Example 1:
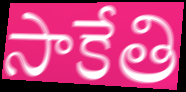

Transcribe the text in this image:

సాకేతి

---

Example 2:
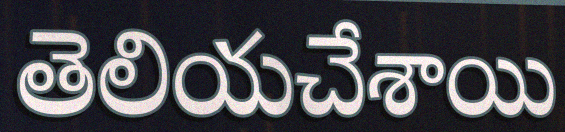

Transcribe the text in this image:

తెలియచేశాయి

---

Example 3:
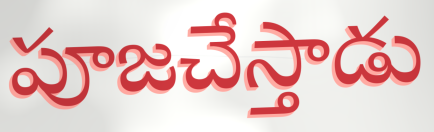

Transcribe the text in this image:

పూజచేస్తాడు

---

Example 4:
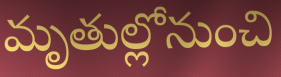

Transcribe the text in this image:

మృతుల్లోనుంచి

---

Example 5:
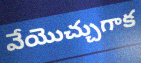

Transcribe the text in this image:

వేయొచ్చుగాక